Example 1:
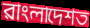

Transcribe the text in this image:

ৱাংলাদেশত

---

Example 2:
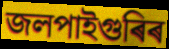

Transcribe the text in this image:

জলপাইগুৰিৰ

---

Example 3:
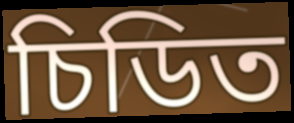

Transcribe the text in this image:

চিডিত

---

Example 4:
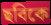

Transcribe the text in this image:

ছবিকে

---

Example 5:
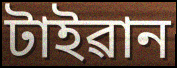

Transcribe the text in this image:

টাইৱান